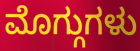
ಮೊಗ್ಗುಗಳು